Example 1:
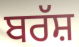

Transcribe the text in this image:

ਬਰੱਸ਼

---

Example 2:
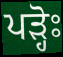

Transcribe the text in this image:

ਪੜ੍ਹੋਃ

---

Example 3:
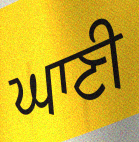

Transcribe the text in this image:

ਘਾਣੀ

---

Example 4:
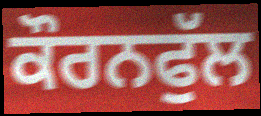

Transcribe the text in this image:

ਕੌਰਨਫੁੱਲ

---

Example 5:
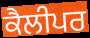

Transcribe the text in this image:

ਕੈਲੀਪਰ